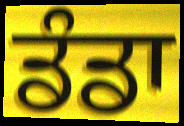
ਡੰਡਾ